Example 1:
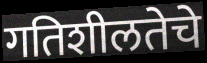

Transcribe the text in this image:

गतिशीलतेचे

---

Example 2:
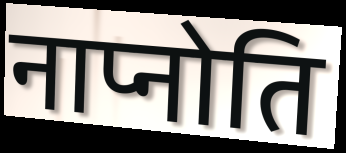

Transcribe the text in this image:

नाप्नोति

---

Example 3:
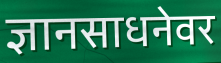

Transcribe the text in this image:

ज्ञानसाधनेवर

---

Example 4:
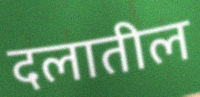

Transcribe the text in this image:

दलातील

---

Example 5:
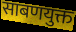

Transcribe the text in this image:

साबणयुक्त